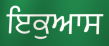
ਇਕੁਆਸ